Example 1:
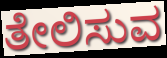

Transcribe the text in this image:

ತೇಲಿಸುವ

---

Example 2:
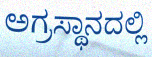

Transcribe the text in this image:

ಅಗ್ರಸ್ಥಾನದಲ್ಲಿ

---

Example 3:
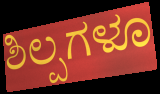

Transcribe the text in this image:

ಶಿಲ್ಪಗಳೂ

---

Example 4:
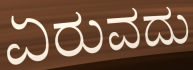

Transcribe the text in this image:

ಏರುವದು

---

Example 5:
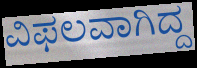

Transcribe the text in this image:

ವಿಫಲವಾಗಿದ್ದ